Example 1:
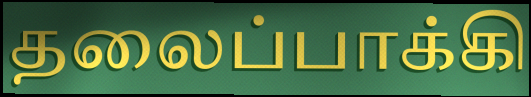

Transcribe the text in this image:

தலைப்பாக்கி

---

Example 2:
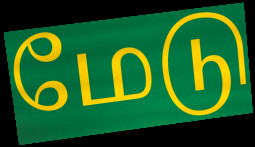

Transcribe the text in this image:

மேடு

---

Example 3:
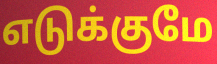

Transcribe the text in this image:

எடுக்குமே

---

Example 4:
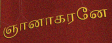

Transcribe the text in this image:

ஞானாகரனே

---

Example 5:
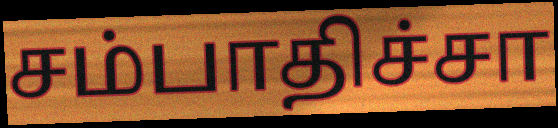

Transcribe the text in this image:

சம்பாதிச்சா